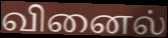
வினைல்